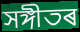
সঙ্গীতৰ